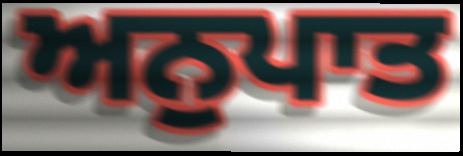
ਅਨੁਪਾਤ